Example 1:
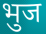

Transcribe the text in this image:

भुज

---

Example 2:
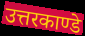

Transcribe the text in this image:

उत्तरकाण्डे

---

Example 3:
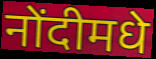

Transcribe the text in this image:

नोंदीमधे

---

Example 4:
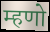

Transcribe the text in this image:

म्हणो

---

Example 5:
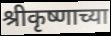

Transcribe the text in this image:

श्रीकृष्णाच्या